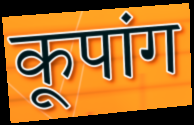
कूपांग